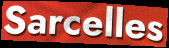
Sarcelles